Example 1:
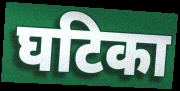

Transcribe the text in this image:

घटिका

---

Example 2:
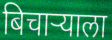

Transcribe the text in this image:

बिचार्‍याला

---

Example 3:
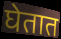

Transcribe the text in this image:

घेतात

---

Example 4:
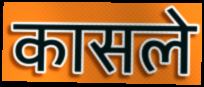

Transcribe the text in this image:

कासले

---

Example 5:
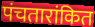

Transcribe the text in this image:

पंचतारांकित